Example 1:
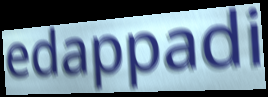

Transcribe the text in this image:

edappadi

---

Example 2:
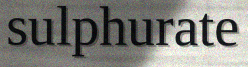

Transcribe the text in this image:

sulphurate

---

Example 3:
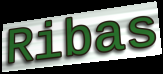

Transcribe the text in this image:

Ribas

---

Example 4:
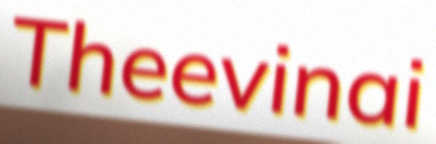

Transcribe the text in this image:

Theevinai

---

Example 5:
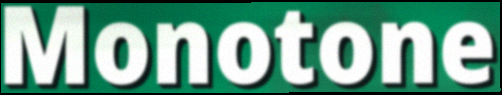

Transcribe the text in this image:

Monotone